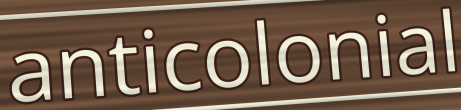
anticolonial